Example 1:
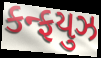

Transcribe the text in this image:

કન્ફયુઝ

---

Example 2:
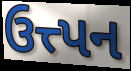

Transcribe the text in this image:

ઉત્ત્પન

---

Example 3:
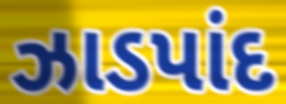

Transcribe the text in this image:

ઝાડપાંદ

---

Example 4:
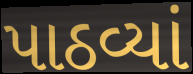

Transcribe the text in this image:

પાઠવ્યાં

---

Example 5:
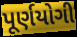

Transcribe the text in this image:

પૂર્ણયોગી